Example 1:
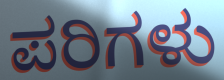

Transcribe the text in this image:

ಪರಿಗಳು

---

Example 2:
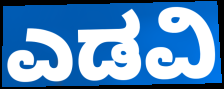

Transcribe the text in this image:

ಎಡವಿ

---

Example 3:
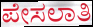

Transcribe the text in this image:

ಪೇಸಲಾತಿ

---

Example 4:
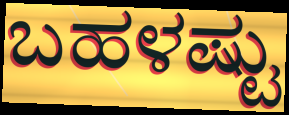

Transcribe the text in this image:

ಬಹಳಷ್ಟು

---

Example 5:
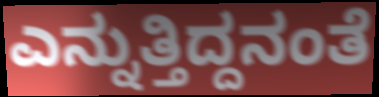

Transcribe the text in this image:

ಎನ್ನುತ್ತಿದ್ದನಂತೆ